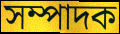
সম্পাদক